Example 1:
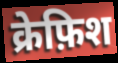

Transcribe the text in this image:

क्रेफ़िश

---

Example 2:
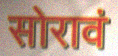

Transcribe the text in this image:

सोरावं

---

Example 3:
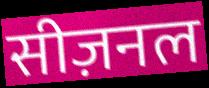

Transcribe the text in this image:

सीज़नल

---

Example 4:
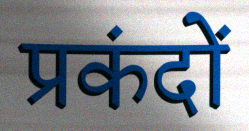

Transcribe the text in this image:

प्रकंदों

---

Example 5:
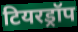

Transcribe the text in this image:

टियरड्रॉप